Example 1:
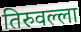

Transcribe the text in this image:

तिरुवल्ला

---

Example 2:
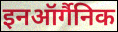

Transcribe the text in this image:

इनऑर्गैनिक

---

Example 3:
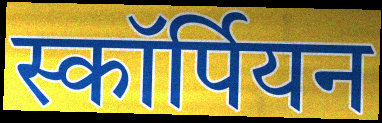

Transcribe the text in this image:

स्कॉर्पियन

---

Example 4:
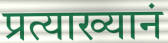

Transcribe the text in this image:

प्रत्याख्यानं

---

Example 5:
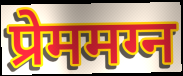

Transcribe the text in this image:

प्रेममग्न